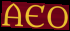
AEO